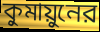
কুমায়ুনের